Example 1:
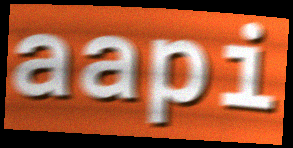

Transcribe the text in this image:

aapi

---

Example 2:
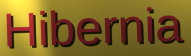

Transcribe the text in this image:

Hibernia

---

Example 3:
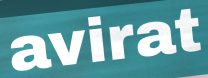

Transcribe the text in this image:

avirat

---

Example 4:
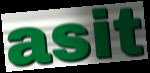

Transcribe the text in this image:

asit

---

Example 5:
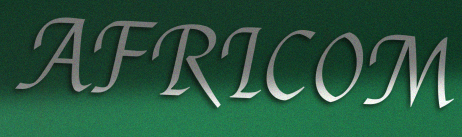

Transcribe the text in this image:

AFRICOM